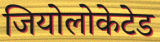
जियोलोकेटेड